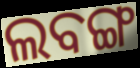
ଲବଙ୍ଗ